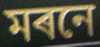
মৰনে